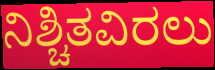
ನಿಶ್ಚಿತವಿರಲು